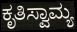
ಕೃತಿಸ್ವಾಮ್ಯ